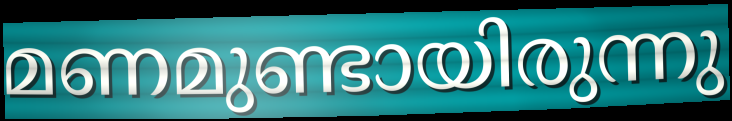
മണമുണ്ടായിരുന്നു